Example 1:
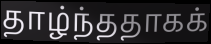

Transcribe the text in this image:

தாழ்ந்ததாகக்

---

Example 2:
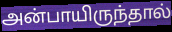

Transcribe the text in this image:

அன்பாயிருந்தால்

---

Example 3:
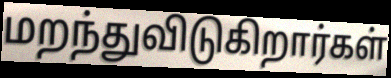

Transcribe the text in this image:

மறந்துவிடுகிறார்கள்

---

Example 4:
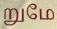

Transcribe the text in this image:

றுமே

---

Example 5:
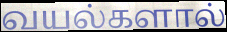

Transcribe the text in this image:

வயல்களால்